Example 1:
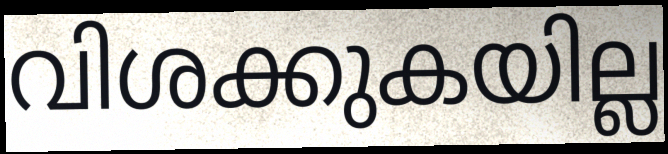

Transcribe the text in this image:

വിശക്കുകയില്ല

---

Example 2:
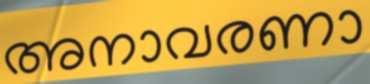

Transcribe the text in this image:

അനാവരണാ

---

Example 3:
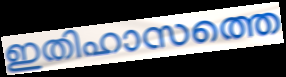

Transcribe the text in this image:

ഇതിഹാസത്തെ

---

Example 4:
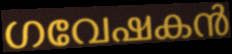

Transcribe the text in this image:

ഗവേഷകൻ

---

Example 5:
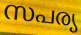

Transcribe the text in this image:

സപര്യ